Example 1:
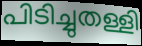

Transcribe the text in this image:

പിടിച്ചുതള്ളി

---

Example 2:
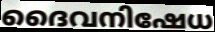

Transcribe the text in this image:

ദൈവനിഷേധ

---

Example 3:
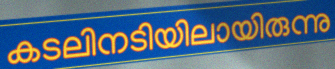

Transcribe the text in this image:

കടലിനടിയിലായിരുന്നു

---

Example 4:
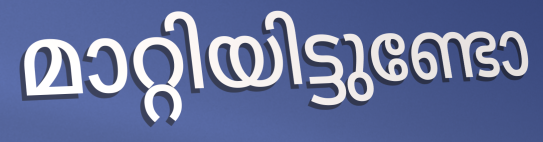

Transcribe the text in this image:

മാറ്റിയിട്ടുണ്ടോ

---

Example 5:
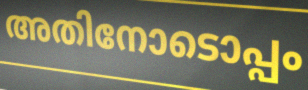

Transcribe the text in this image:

അതിനോടൊപ്പം